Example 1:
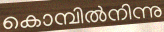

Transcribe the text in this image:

കൊമ്പിൽനിന്നു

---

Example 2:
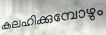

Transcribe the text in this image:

കലഹിക്കുമ്പോഴും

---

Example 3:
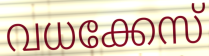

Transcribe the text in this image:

വധക്കേസ്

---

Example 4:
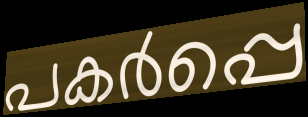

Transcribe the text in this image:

പകർപ്പെ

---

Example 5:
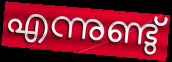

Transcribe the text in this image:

എന്നുണ്ടു്